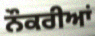
ਨੌਕਰੀਆਂ